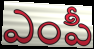
ఎంపీ